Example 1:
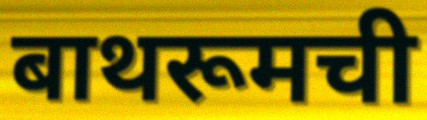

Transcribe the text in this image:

बाथरूमची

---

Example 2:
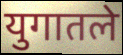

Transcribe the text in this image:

युगातले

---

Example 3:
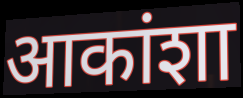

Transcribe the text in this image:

आकांशा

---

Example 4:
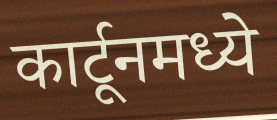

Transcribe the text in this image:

कार्टूनमध्ये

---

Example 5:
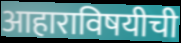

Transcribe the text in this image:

आहाराविषयीची